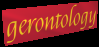
gerontology